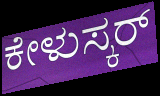
ಕೇಳುಸ್ಕರ್